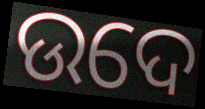
ଉଦେ